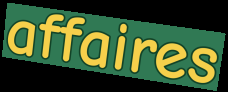
affaires